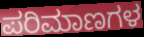
ಪರಿಮಾಣಗಳ